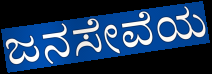
ಜನಸೇವೆಯ